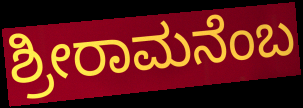
ಶ್ರೀರಾಮನೆಂಬ